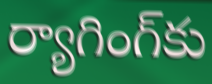
ర్యాగింగ్‌కు